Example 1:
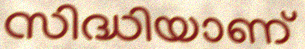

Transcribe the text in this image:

സിദ്ധിയാണ്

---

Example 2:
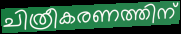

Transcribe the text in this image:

ചിത്രീകരണത്തിന്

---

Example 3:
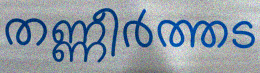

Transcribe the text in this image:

തണ്ണീർത്തട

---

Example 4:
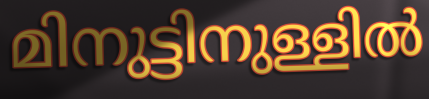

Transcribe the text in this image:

മിനുട്ടിനുള്ളിൽ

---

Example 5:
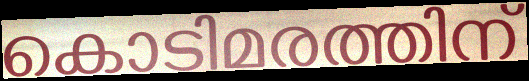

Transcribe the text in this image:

കൊടിമരത്തിന്